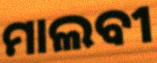
ମାଲବୀ